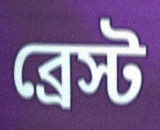
ব্রেস্ট